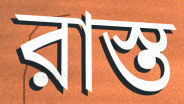
রাস্ত